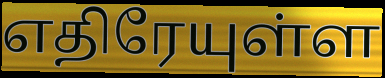
எதிரேயுள்ள